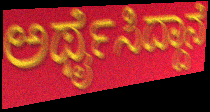
ಅರ್ಥೈಸಿದ್ದಾನೆ